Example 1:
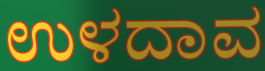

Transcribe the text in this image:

ಉಳದಾವ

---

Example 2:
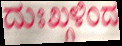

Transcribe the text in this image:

ದುಃಖ್ಗಳಿಂದ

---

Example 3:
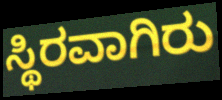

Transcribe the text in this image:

ಸ್ಥಿರವಾಗಿರು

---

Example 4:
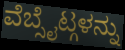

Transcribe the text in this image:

ವೆಬ್ಸೈಟ್ಗಳನ್ನು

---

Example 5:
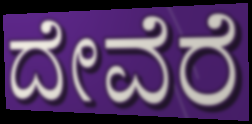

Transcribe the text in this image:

ದೇವೆರೆ